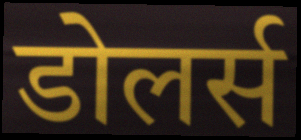
डोलर्स